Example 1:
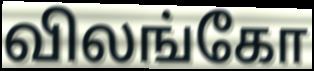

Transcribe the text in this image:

விலங்கோ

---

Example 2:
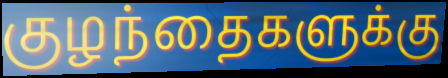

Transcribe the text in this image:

குழந்தைகளுக்கு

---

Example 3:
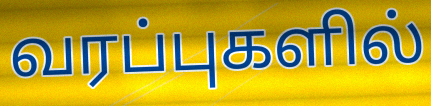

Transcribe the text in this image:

வரப்புகளில்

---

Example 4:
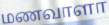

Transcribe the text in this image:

மணவாளா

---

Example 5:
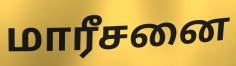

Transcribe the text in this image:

மாரீசனை